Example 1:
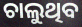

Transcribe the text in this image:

ଚାଲୁଥିବ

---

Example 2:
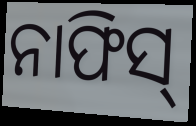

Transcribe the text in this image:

ନାଫିସ୍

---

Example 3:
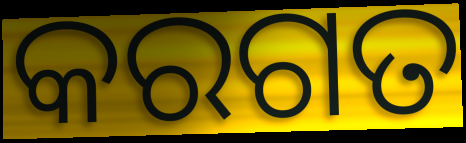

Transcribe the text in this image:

କରଗତ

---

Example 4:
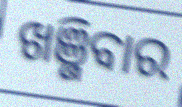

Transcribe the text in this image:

ଖଞ୍ଜିବାର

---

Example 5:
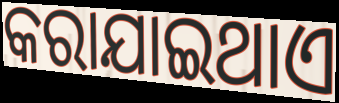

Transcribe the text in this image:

କରାଯାଇଥାଏ